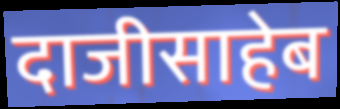
दाजीसाहेब